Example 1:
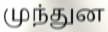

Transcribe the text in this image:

முந்துன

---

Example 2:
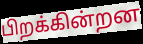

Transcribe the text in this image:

பிறக்கின்றன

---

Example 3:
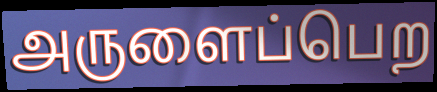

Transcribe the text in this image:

அருளைப்பெற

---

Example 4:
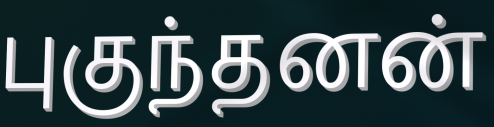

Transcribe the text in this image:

புகுந்தனன்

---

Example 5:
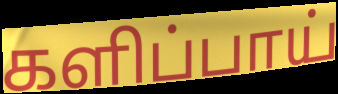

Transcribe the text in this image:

களிப்பாய்